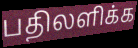
பதிலளிக்க